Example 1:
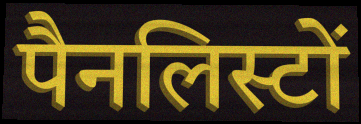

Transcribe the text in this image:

पैनलिस्टों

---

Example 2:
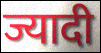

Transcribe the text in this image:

ज्यादी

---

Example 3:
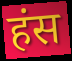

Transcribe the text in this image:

हंस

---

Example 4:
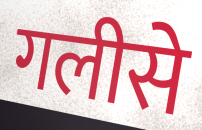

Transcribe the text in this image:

गलीसे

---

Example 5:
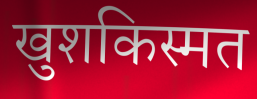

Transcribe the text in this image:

खुशकिस्मत